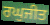
ਰਘੁਜੀਤ